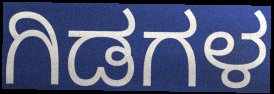
ಗಿಡಗಳ